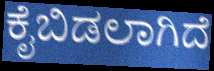
ಕೈಬಿಡಲಾಗಿದೆ